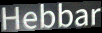
Hebbar